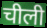
चीली